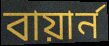
বায়ার্ন